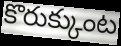
కొరుక్కుంట